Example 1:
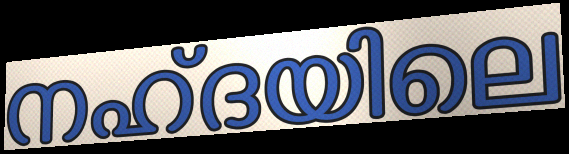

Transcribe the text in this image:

നഹ്ദയിലെ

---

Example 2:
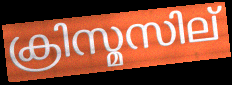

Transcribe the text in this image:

ക്രിസ്മസില്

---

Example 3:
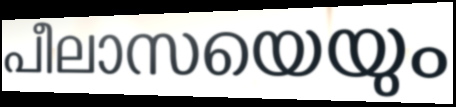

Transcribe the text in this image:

പീലാസയെയും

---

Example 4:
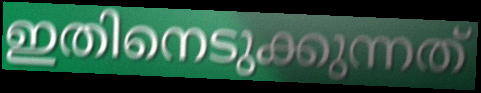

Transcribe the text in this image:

ഇതിനെടുക്കുന്നത്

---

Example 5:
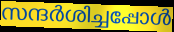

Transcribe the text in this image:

സന്ദർശിച്ചപ്പോൾ